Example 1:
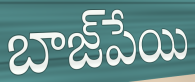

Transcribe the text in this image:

బాజ్‌పేయి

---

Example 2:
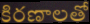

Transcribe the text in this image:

కిరణాలతో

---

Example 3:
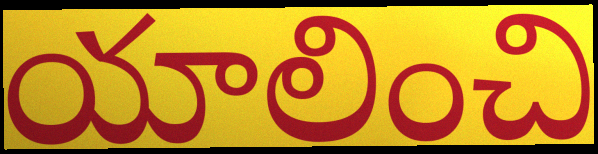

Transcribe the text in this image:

యాలించి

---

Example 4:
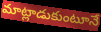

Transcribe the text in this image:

మాట్లాడుకుంటూనే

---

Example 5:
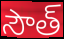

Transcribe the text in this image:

సౌత్